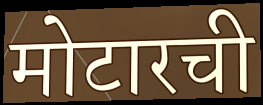
मोटारची